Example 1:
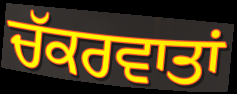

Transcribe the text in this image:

ਚੱਕਰਵਾਤਾਂ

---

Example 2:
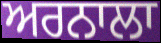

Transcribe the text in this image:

ਅਰਨਾਲਾ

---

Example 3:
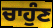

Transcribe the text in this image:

ਚਾਹੁੰਣ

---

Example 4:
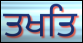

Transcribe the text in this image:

ਤਖਤਿ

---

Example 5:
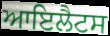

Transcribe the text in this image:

ਆਇਲੈਟਸ